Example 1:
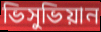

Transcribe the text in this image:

ভিসুভিয়ান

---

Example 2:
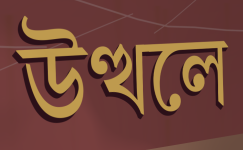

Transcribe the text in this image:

উত্থলে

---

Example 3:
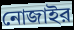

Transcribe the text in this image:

নোজাইর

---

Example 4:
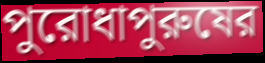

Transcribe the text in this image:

পুরোধাপুরুষের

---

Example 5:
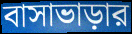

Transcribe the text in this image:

বাসাভাড়ার